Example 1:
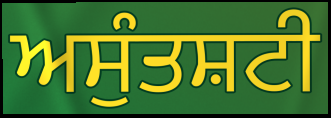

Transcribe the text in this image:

ਅਸੁੰਤਸ਼ਟੀ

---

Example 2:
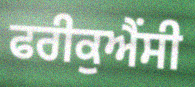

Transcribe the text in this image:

ਫਰੀਕੁਐਂਸੀ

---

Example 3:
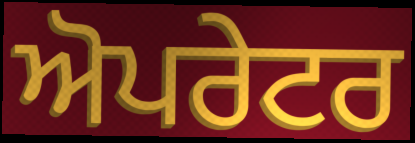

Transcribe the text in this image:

ਅੋਪਰੇਟਰ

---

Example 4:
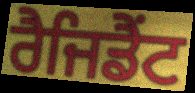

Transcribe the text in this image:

ਰੈਜਿਡੈਂਟ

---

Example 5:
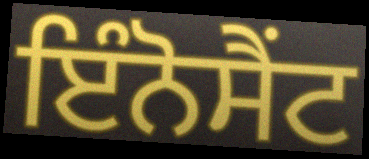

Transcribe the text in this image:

ਇੰਨੋਸੈਂਟ